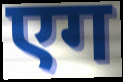
एग